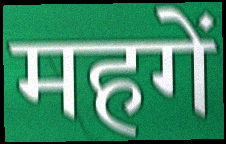
महगें